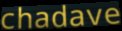
chadave